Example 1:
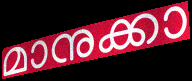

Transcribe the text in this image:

മാനുക്കാ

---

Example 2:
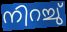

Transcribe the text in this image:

നിറച്ചു്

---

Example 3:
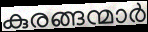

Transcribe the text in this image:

കുരങ്ങന്മാർ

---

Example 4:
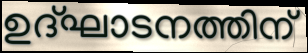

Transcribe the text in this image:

ഉദ്ഘാടനത്തിന്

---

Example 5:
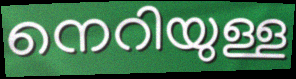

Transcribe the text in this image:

നെറിയുള്ള